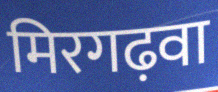
मिरगढ़वा